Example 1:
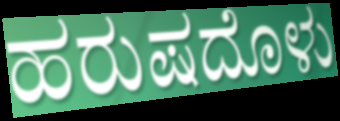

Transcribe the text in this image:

ಹರುಷದೊಳು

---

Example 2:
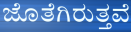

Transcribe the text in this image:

ಜೊತೆಗಿರುತ್ತವೆ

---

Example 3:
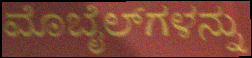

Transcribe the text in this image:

ಮೊಬೈಲ್‌ಗಳನ್ನು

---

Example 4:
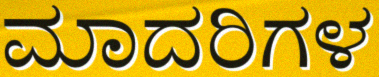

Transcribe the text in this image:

ಮಾದರಿಗಳ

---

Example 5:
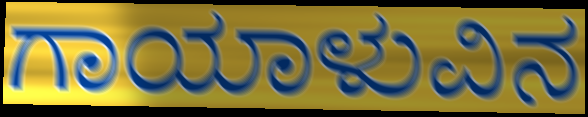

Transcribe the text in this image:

ಗಾಯಾಳುವಿನ